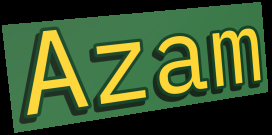
Azam